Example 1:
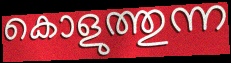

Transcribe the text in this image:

കൊളുത്തുന്ന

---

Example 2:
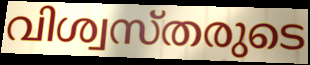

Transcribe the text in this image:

വിശ്വസ്തരുടെ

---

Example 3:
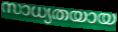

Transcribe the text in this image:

സാധ്യതയായ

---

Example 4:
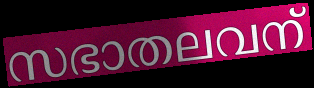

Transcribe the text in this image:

സഭാതലവന്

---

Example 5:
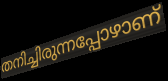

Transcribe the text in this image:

തനിച്ചിരുന്നപ്പോഴാണ്